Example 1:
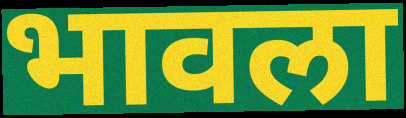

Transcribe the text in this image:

भावला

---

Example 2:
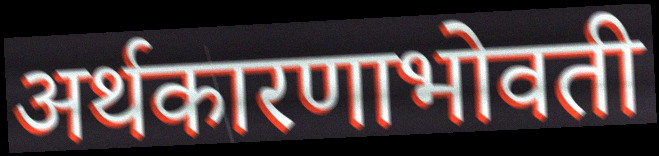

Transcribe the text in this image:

अर्थकारणाभोवती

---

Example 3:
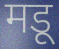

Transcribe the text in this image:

मडू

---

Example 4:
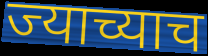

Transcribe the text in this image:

ज्याच्याच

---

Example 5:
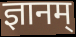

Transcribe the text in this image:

ज्ञानम्